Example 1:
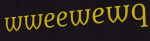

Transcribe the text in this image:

wweewewq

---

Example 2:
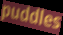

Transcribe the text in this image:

puddles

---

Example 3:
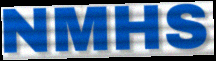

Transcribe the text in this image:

NMHS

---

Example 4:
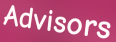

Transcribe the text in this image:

Advisors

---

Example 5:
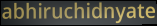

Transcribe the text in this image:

abhiruchidnyate